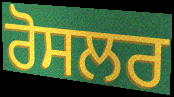
ਰੋਸਲਰ